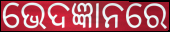
ଭେଦଜ୍ଞାନରେ